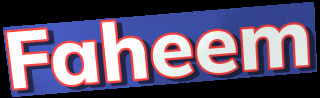
Faheem